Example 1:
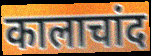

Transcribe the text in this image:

कालाचांद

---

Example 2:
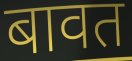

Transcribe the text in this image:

बावत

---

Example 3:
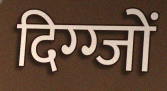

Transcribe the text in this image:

दिग्ग्जों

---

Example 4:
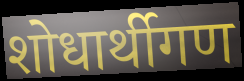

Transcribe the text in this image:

शोधार्थीगण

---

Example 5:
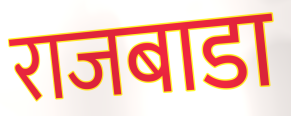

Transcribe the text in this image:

राजबाडा